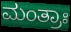
ಮಂತ್ರಾಃ